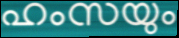
ഹംസയും